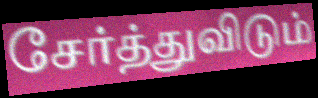
சேர்த்துவிடும்